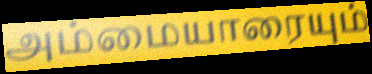
அம்மையாரையும்